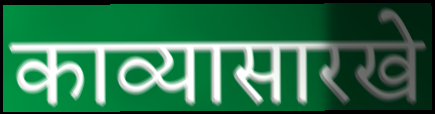
काव्यासारखे